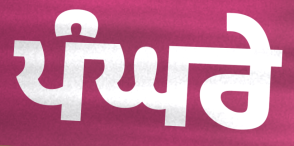
ਪੰਘਰੇ